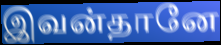
இவன்தானே